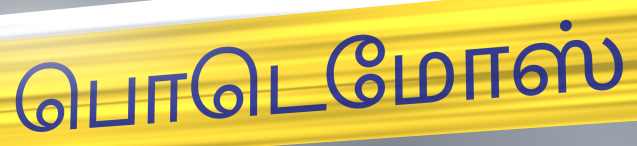
பொடெமோஸ்